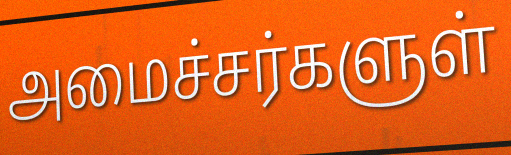
அமைச்சர்களுள்